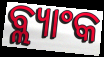
ବ୍ଲ୍ଯାଂକ